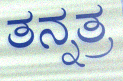
ತನ್ನತ್ರ